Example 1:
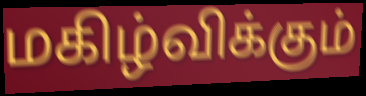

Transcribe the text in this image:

மகிழ்விக்கும்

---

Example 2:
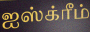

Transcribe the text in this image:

ஐஸ்க்ரீம்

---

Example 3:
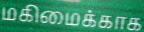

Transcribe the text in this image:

மகிமைக்காக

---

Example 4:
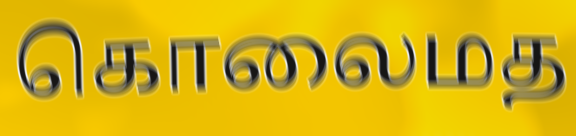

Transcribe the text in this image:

கொலைமத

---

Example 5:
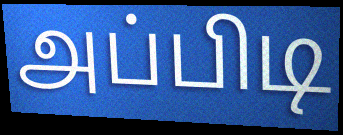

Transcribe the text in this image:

அப்பிடி